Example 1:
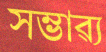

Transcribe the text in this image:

সম্ভাৱ্য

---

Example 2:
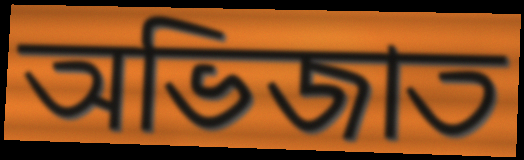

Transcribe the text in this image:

অভিজাত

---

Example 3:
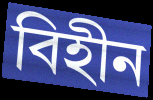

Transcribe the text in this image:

বিহীন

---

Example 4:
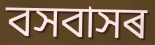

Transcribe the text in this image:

বসবাসৰ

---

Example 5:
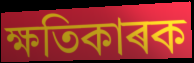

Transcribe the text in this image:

ক্ষতিকাৰক